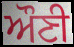
ਔਣੀ